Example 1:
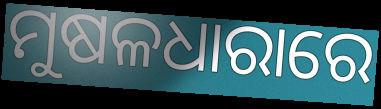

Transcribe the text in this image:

ମୁଷଳଧାରାରେ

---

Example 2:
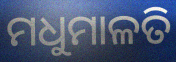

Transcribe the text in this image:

ମଧୁମାଳତି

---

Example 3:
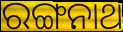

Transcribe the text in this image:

ରଙ୍ଗନାଥ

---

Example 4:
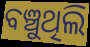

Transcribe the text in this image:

ବଞ୍ଚୁଥିଲି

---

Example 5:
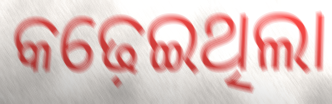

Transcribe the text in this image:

କଢ଼େଇଥିଲା